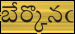
బేర్కొనఁ